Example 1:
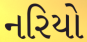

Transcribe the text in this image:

નરિયો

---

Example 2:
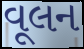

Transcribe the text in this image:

વૂલન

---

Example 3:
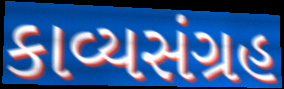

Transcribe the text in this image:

કાવ્યસંગ્રહ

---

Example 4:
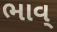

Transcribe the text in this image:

ભાવ્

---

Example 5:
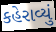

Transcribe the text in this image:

કહેરાવ્યું